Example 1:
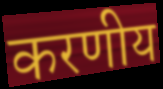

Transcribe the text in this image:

करणीय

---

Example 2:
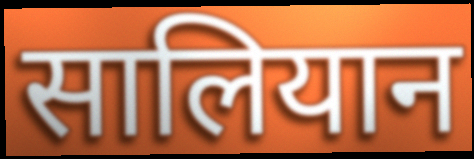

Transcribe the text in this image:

सालियान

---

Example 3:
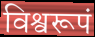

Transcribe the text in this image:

विश्वरूपं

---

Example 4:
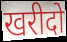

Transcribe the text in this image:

खरीदो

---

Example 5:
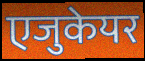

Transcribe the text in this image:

एजुकेयर